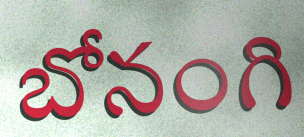
బోనంగి